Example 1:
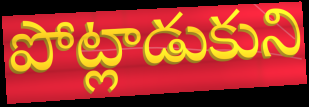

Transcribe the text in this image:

పోట్లాడుకుని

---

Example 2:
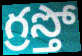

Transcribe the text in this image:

గ్రస్తో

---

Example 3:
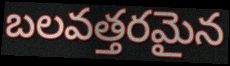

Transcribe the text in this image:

బలవత్తరమైన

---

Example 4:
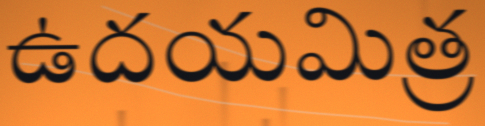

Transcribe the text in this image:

ఉదయమిత్ర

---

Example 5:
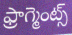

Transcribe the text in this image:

ఫ్రాగ్మెంట్స్